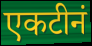
एकटीनं